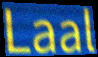
Laal